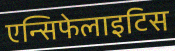
एन्सिफेलाइटिस